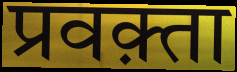
प्रवक़्ता